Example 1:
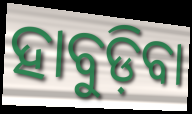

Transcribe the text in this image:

ହାବୁଡ଼ିବା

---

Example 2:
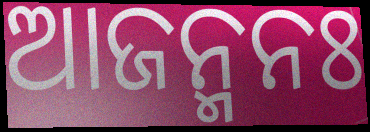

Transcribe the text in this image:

ଆଜନ୍ମନଃ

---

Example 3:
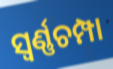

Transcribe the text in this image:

ସ୍ୱର୍ଣ୍ଣଚମ୍ପା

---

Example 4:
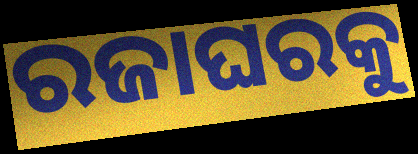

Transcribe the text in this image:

ରଜାଘରକୁ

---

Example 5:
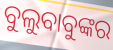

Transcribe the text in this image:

ବୁଲୁବାବୁଙ୍କର